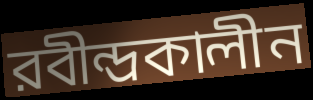
রবীন্দ্রকালীন